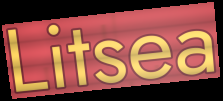
Litsea